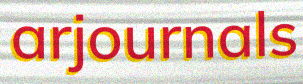
arjournals